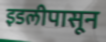
इडलीपासून